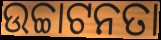
ଉଚ୍ଚାଟନତା